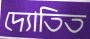
দ্যোতিত